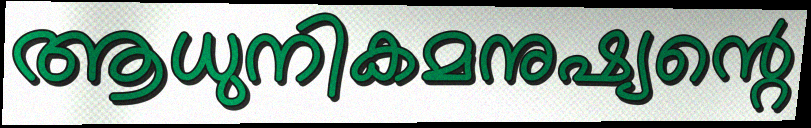
ആധുനികമനുഷ്യന്റെ